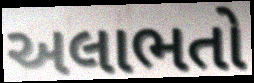
અલાભતો